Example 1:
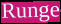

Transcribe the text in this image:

Runge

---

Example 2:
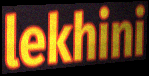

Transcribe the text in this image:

lekhini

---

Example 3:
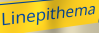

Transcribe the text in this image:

Linepithema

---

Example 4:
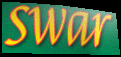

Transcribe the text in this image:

swar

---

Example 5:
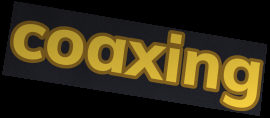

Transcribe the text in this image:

coaxing